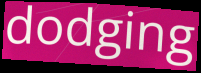
dodging